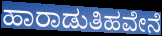
ಹಾರಾಡುತಿಹವೇನೆ